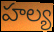
హల్య